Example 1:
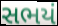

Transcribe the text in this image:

સભયં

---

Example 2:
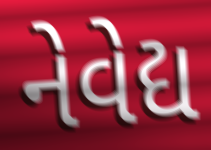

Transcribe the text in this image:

નેવેદ્ય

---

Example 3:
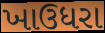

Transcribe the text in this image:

ખાઉધરા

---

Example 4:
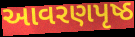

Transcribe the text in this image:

આવરણપૃષ્ઠ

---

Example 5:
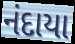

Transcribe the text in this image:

નંદાયા